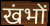
खंभों